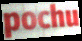
pochu